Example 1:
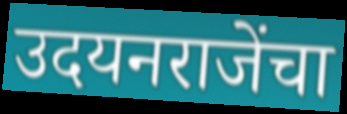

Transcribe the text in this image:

उदयनराजेंचा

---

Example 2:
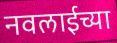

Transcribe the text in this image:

नवलाईच्या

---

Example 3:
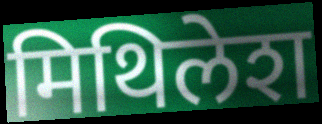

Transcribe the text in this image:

मिथिलेश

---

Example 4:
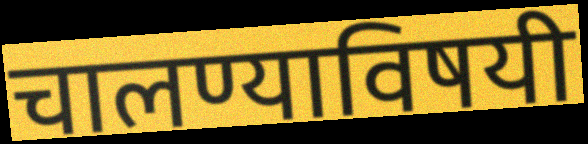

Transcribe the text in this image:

चालण्याविषयी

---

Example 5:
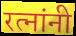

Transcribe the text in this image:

रत्नांनी